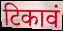
टिकावं